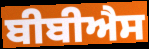
ਬੀਬੀਐਸ